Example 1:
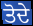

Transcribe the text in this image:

ਤੋਦੇ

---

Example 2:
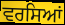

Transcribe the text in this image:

ਵਰਸਿਆਂ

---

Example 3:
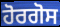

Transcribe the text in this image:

ਹੋਰਗੋਸ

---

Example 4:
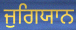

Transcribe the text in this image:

ਜੁਗਿਯਾਨ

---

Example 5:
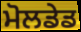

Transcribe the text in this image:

ਮੋਲਡੇਡ